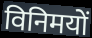
विनिमयों